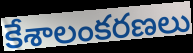
కేశాలంకరణలు